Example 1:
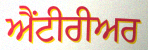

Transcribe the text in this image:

ਐਂਟੀਰੀਅਰ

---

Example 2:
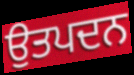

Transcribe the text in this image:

ਉਤਪਦਨ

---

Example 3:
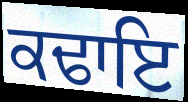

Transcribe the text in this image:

ਕਢਾਇ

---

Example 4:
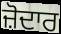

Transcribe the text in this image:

ਜ਼ੋਦਾਰ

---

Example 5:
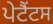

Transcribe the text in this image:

ਪੇਟੈਂਟਸ